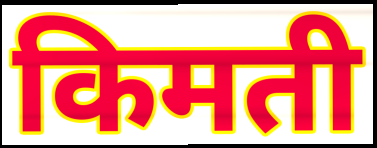
किमती